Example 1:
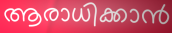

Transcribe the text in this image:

ആരാധിക്കാൻ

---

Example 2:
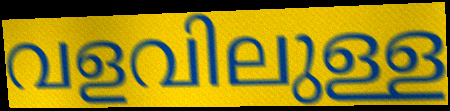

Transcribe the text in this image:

വളവിലുള്ള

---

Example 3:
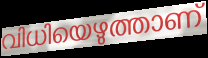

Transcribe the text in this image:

വിധിയെഴുത്താണ്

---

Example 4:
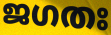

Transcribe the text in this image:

ജഗതഃ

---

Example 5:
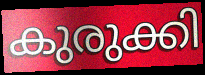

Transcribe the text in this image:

കുരുക്കി